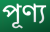
পূণ্য